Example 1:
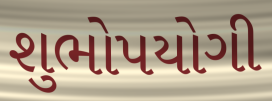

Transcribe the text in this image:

શુભોપયોગી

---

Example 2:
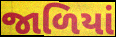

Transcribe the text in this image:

જાળિયાં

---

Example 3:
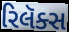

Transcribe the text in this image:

રિલૅક્સ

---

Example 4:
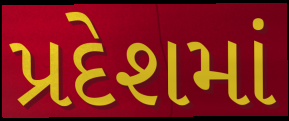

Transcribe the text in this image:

પ્રદેશમાં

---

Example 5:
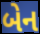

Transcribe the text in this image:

બેન